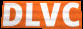
DLVC